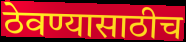
ठेवण्यासाठीच